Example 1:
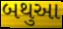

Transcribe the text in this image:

બથુઆ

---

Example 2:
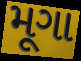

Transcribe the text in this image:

મૂગા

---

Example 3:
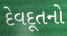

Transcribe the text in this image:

દેવદૂતનો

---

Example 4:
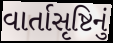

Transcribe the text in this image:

વાર્તાસૃષ્ટિનું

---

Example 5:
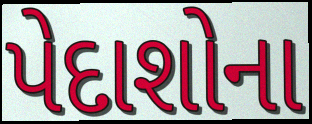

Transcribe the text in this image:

પેદાશોના